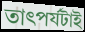
তাৎপর্যটাই